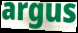
argus